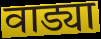
वाड्या